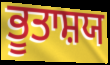
ਭੂਤਾਸ਼ਯ